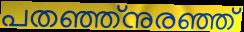
പതഞ്ഞ്നുരഞ്ഞ്